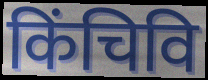
किंचिवि